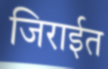
जिराईत